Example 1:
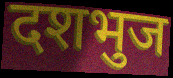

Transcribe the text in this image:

दशभुज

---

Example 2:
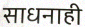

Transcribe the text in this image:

साधनाही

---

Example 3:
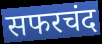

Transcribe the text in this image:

सफरचंद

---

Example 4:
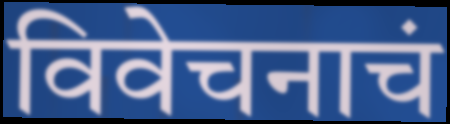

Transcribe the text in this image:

विवेचनाचं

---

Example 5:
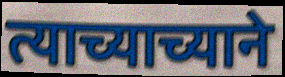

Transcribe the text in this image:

त्याच्याच्याने